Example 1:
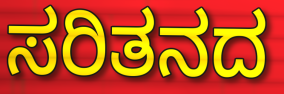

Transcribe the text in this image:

ಸರಿತನದ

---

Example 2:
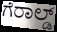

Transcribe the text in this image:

ಗೆರಾಲ್ಡ್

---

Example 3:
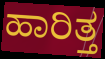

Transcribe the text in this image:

ಹಾರಿತ್ತ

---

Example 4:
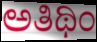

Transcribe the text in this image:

ಅತಿಥಿಂ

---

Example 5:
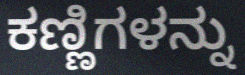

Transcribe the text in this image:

ಕಣ್ಣಿಗಳನ್ನು